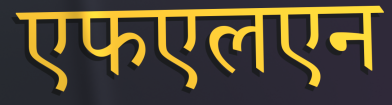
एफएलएन